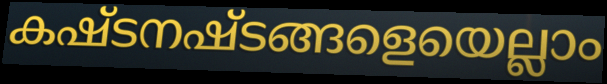
കഷ്ടനഷ്ടങ്ങളെയെല്ലാം